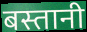
बस्तानी